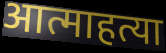
आत्माहत्या